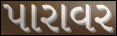
પારાવર